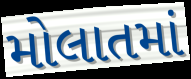
મોલાતમાં